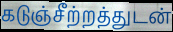
கடுஞ்சீற்றத்துடன்